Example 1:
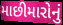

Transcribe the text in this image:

માછીમારોનું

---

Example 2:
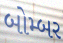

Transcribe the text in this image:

બોમ્બર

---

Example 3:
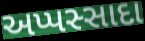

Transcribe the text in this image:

અપ્પસ્સાદા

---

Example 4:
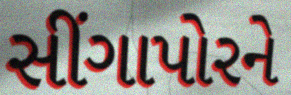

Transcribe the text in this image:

સીંગાપોરને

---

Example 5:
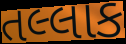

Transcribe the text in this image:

તલ્લાક